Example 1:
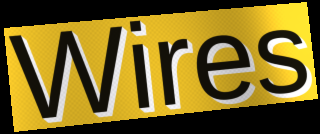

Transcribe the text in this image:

Wires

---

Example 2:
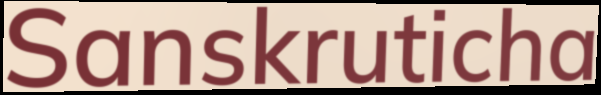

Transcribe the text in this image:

Sanskruticha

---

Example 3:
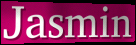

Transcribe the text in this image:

Jasmin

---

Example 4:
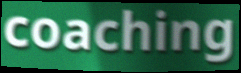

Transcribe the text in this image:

coaching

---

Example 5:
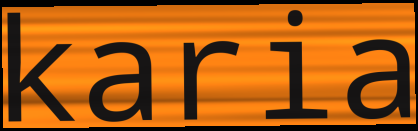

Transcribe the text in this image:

karia